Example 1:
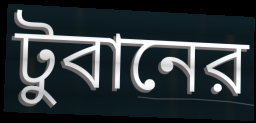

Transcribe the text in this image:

টুবানের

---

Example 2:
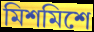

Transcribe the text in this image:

মিশমিশে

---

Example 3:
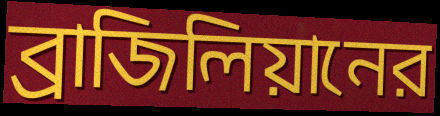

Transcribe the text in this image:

ব্রাজিলিয়ানের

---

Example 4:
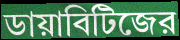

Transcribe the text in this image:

ডায়াবিটিজের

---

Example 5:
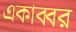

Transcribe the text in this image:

একাব্বর